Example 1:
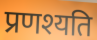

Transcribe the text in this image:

प्रणश्यति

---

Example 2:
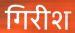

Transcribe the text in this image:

गिरीश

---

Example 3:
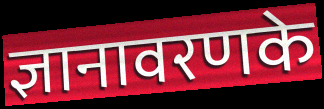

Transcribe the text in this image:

ज्ञानावरणके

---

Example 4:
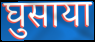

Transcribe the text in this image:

घुसाया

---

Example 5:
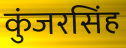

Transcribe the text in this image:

कुंजरसिंह